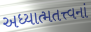
અધ્યાત્મતત્ત્વનાં